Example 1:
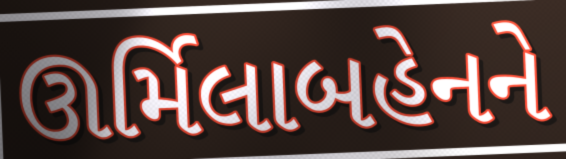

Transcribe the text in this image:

ઊર્મિલાબહેનને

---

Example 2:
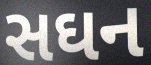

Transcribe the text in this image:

સઘન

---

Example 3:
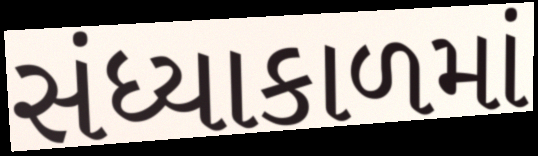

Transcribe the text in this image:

સંધ્યાકાળમાં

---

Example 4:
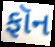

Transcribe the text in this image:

ફૉન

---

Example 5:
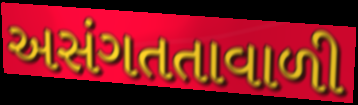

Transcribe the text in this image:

અસંગતતાવાળી